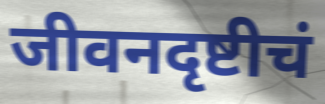
जीवनदृष्टीचं